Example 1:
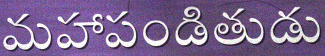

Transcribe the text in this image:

మహాపండితుడు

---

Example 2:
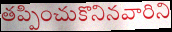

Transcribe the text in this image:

తప్పించుకొనినవారిని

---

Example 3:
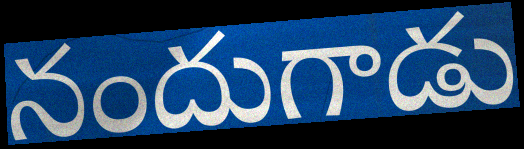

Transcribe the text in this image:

నందుగాడు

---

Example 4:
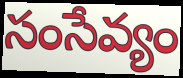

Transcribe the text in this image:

సంసేవ్యం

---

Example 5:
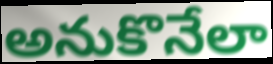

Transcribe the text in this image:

అనుకొనేలా